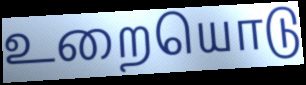
உறையொடு